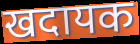
खदायक